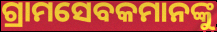
ଗ୍ରାମସେବକମାନଙ୍କୁ